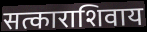
सत्काराशिवाय